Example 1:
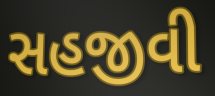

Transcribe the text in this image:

સહજીવી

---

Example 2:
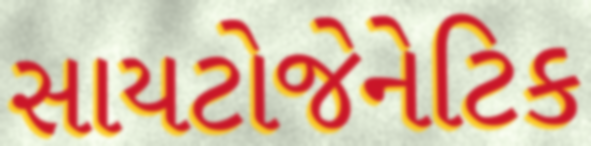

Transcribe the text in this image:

સાયટોજેનેટિક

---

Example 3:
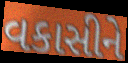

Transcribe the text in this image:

વકાસીને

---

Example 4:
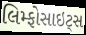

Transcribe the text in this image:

લિમ્ફોસાઇટ્સ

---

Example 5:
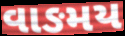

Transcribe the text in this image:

વાઙમય